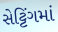
સેટ્ટિંગમાં